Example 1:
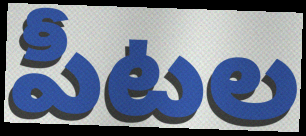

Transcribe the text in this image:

పీటల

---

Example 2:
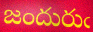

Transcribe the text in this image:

జందురుఁ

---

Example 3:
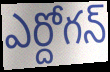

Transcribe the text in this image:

ఎర్దోగన్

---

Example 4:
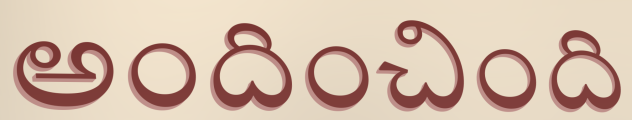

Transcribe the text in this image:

అందించింది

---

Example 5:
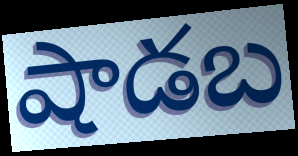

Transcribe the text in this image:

షాడబ